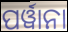
ପର୍ୱାନା